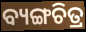
ବ୍ୟଙ୍ଗଚିତ୍ର